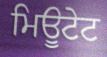
ਮਿਊਟੇਟ